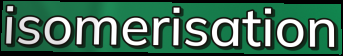
isomerisation